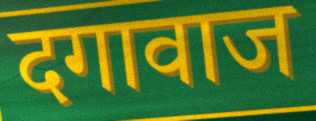
दगावाज